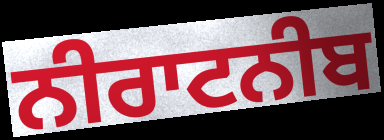
ਨੀਰਾਟਨੀਬ